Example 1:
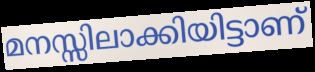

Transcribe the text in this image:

മനസ്സിലാക്കിയിട്ടാണ്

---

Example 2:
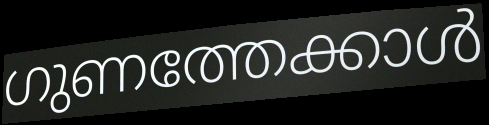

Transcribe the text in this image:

ഗുണത്തേക്കാൾ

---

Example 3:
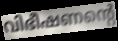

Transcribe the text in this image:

വിഭീഷണന്റെ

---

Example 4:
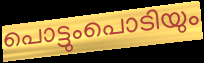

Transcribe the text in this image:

പൊട്ടുംപൊടിയും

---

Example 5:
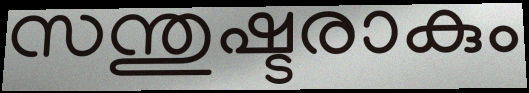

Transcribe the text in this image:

സന്തുഷ്ടരാകും